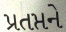
પ્રતપ્તને